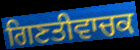
ਗਿਣਤੀਵਾਚਕ